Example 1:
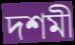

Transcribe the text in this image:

দশমী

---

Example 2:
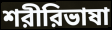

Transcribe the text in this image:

শরীরিভাষা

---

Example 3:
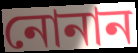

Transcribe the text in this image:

নোনান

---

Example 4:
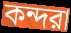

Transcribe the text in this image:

কন্দরা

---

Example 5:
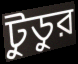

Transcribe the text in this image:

টুডুর